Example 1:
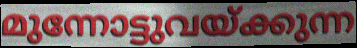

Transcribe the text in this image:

മുന്നോട്ടുവയ്ക്കുന്ന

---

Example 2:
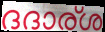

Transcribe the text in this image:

ദദാര്ശ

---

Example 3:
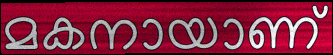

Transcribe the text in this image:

മകനായാണ്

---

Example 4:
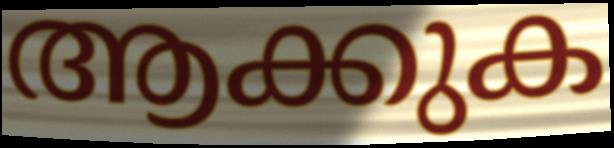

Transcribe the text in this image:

ആക്കുക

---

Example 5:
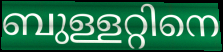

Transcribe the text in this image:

ബുള്ളറ്റിനെ